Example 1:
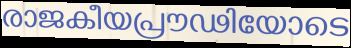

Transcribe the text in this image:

രാജകീയപ്രൗഢിയോടെ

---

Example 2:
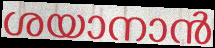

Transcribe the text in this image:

ശയാനാൻ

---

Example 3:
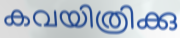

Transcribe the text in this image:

കവയിത്രിക്കു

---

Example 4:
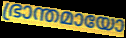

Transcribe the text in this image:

ഭ്രാന്തമായോ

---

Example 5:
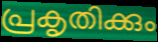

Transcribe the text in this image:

പ്രകൃതിക്കും